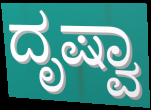
ದೃಷ್ವಾ